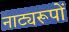
नाट्यरूपों